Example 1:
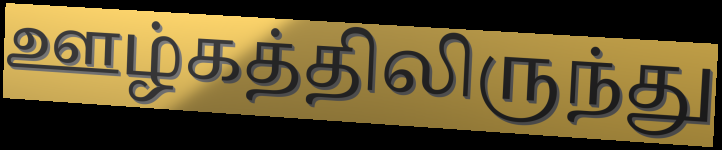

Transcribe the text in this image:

ஊழ்கத்திலிருந்து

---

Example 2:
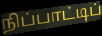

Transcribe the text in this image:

நிப்பாட்டிப்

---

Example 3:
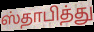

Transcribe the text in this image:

ஸ்தாபித்து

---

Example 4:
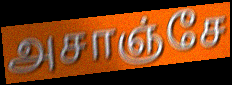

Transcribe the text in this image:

அசாஞ்சே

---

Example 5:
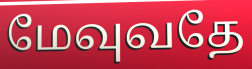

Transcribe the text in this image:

மேவுவதே